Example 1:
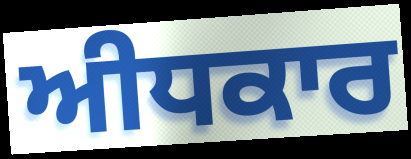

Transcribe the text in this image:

ਅੀਧਕਾਰ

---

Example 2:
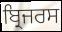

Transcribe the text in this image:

ਬ੍ਰਿਜਰਸ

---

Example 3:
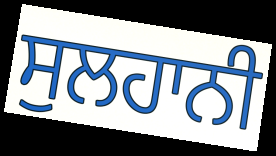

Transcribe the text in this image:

ਸੁਲਹਾਨੀ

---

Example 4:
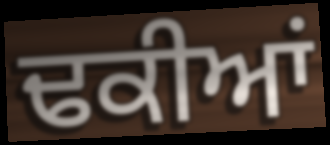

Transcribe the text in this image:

ਢਕੀਆਂ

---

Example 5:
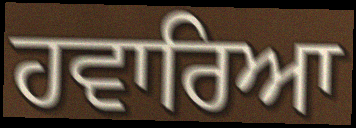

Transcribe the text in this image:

ਹਵਾਰਿਆ